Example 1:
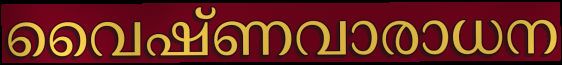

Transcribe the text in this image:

വൈഷ്ണവാരാധന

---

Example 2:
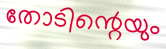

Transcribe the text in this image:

തോടിന്റെയും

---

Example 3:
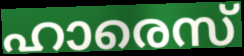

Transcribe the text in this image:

ഹാരെസ്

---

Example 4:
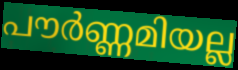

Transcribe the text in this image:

പൗർണ്ണമിയല്ല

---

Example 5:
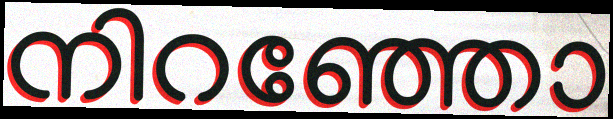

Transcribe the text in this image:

നിറഞ്ഞോ